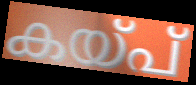
കയ്പ്